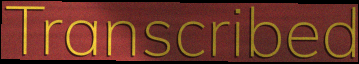
Transcribed